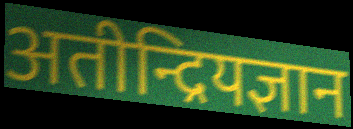
अतीन्द्रियज्ञान